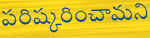
పరిష్కరించామని